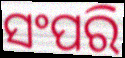
ସଂପରି